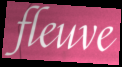
fleuve